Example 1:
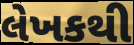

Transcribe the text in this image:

લેખકથી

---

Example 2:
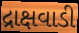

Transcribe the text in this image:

દ્રાક્ષવાડી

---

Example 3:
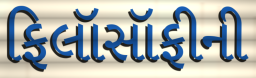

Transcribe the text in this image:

ફિલૉસૉફીની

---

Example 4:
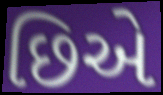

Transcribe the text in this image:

છિએ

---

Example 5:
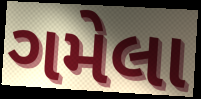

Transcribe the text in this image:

ગમેલા